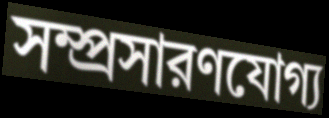
সম্প্রসারণযোগ্য